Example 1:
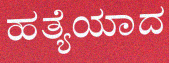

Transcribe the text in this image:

ಹತ್ಯೆಯಾದ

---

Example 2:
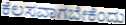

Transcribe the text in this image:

ಕೆಲಸವಾಗಬೇಕೆಂದು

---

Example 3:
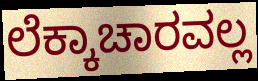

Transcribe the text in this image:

ಲೆಕ್ಕಾಚಾರವಲ್ಲ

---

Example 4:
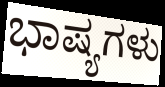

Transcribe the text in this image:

ಭಾಷ್ಯಗಳು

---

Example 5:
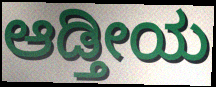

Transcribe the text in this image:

ಆಡ್ತೀಯ